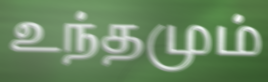
உந்தமும்